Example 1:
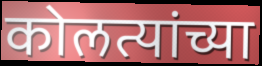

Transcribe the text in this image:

कोलत्यांच्या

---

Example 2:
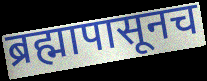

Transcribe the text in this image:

ब्रह्मापासूनच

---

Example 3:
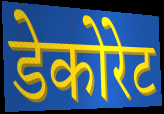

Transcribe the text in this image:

डेकोरेट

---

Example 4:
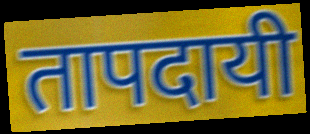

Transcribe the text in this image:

तापदायी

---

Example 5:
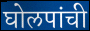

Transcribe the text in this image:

घोलपांची